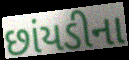
છાંયડીના